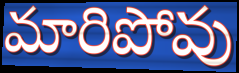
మారిపోవు